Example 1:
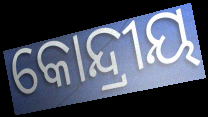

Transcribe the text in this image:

କୋନ୍ଦ୍ରୀୟ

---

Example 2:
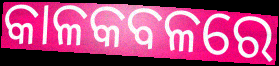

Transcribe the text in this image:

କାଳକବଳରେ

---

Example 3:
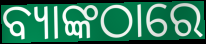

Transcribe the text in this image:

ବ୍ୟାଙ୍କଠାରେ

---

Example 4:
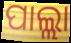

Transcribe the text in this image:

ପାଲ୍ଲା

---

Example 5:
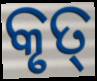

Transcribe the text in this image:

କୃତ୍